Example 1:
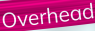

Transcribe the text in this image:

Overhead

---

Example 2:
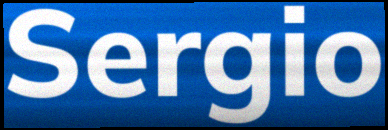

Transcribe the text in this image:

Sergio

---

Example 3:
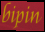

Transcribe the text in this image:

bipin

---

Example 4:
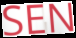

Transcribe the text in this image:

SEN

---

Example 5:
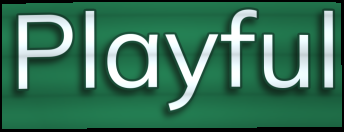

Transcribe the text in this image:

Playful